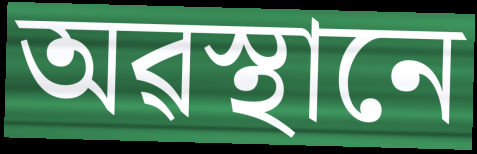
অৱস্থানে